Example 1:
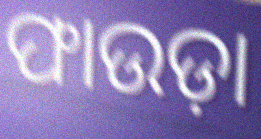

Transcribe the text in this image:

ଫାଉଡ଼ା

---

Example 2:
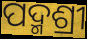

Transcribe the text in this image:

ପଦ୍ମଶ୍ରୀ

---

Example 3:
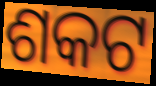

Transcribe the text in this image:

ଶକଟ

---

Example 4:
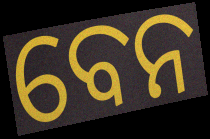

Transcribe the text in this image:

ବେନ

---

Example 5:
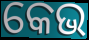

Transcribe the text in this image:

କେଭ